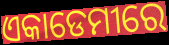
ଏକାଡେମୀରେ